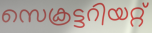
സെക്രട്ടറിയറ്റ്